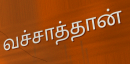
வச்சாத்தான்